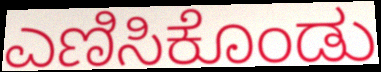
ಎಣಿಸಿಕೊಂಡು